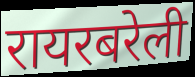
रायरबरेली